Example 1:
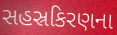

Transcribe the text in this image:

સહસ્રકિરણના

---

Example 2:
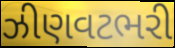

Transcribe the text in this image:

ઝીણવટભરી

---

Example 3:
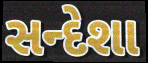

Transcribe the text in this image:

સન્દેશા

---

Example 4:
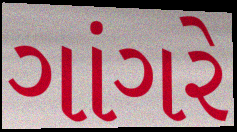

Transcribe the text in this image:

ગાંગરે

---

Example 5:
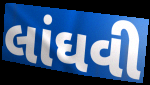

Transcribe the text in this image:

લાંઘવી